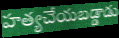
హత్యచేయబడ్డాడు